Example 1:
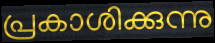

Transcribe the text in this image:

പ്രകാശിക്കുന്നു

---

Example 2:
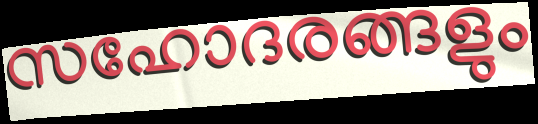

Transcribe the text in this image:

സഹോദരങ്ങളും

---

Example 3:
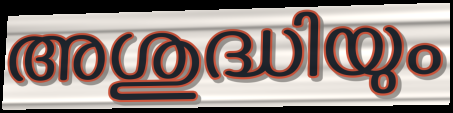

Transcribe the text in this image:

അശുദ്ധിയും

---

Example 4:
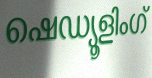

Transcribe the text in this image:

ഷെഡ്യൂളിംഗ്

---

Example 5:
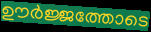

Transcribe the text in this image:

ഊർജ്ജത്തോടെ